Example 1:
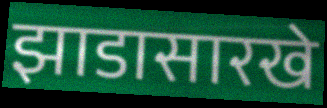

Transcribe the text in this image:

झाडासारखे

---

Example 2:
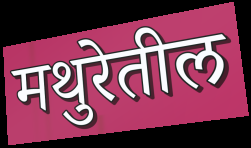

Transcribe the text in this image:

मथुरेतील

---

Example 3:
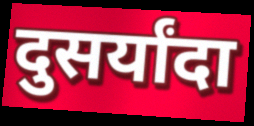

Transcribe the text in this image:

दुसर्यांदा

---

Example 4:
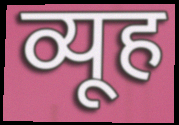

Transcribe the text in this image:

व्यूह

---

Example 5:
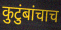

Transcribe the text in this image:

कुटुंबांचाच